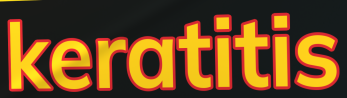
keratitis